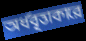
অর্ধবৃত্তাকারে